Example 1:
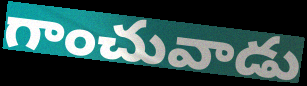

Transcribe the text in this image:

గాంచువాడు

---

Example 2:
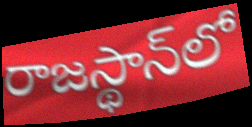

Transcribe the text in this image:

రాజస్థాన్‌లో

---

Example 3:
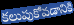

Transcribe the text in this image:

కలుపుకోవడానికి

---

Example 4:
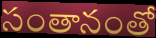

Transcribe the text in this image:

సంతానంతో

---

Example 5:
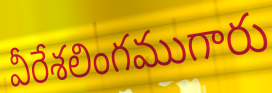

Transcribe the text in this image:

వీరేశలింగముగారు